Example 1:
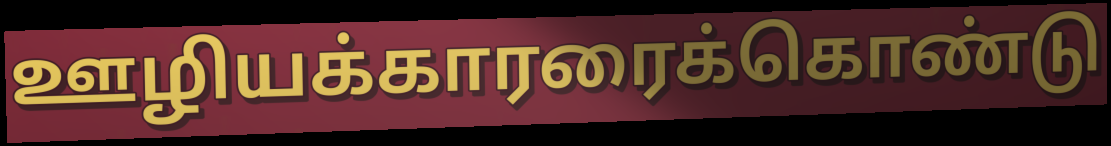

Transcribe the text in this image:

ஊழியக்காரரைக்கொண்டு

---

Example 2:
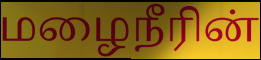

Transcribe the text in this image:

மழைநீரின்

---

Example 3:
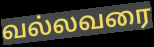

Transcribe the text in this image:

வல்லவரை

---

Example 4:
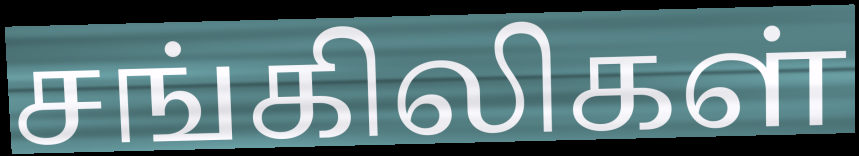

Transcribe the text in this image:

சங்கிலிகள்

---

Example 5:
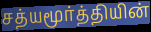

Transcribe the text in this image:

சத்யமூர்த்தியின்